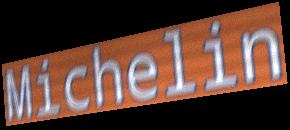
Michelin